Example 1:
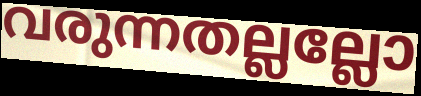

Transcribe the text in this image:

വരുന്നതല്ലല്ലോ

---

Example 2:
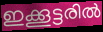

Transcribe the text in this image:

ഇക്കൂട്ടരിൽ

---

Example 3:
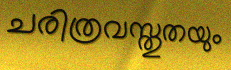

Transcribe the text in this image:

ചരിത്രവസ്തുതയും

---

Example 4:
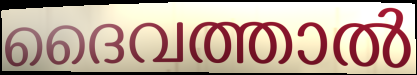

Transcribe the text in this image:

ദൈവത്താൽ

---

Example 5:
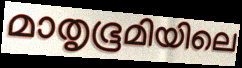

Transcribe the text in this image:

മാതൃഭൂമിയിലെ